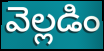
వెల్లడిం